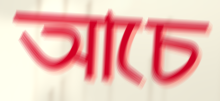
আচে